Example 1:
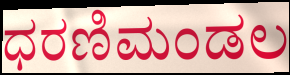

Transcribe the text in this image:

ಧರಣಿಮಂಡಲ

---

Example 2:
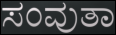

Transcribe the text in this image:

ಸಂವುತಾ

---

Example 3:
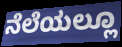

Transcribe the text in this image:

ನೆಲೆಯಲ್ಲೂ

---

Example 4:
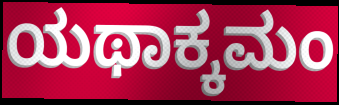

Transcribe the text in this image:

ಯಥಾಕ್ಕಮಂ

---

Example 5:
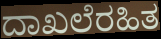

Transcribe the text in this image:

ದಾಖಲೆರಹಿತ